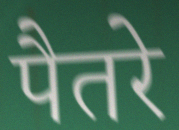
पैतरे